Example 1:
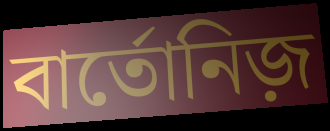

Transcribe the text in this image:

বার্তোনিজ়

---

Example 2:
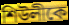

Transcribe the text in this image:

শিউলীকে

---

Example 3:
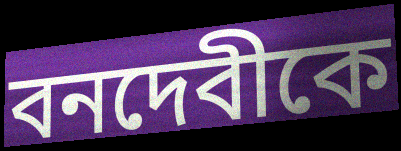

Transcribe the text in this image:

বনদেবীকে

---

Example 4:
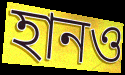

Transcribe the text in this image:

হানও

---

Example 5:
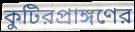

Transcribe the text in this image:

কুটিরপ্রাঙ্গণের